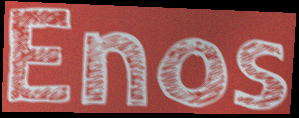
Enos